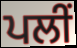
ਪਲੀਂ